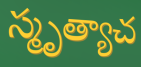
స్మృత్యాచ